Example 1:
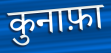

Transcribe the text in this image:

कुनाफ़ा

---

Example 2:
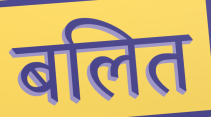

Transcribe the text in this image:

बलित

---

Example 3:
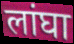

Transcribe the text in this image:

लांघा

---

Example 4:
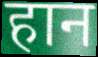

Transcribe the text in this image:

हान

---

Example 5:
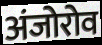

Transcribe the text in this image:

अंजोरोव